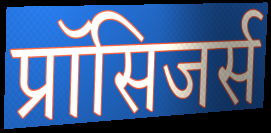
प्रॉसिजर्स